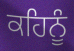
ਕਹਿਨੂੰ